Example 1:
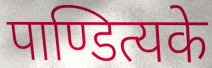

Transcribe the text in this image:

पाण्डित्यके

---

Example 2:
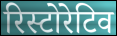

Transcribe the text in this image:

रिस्टोरेटिव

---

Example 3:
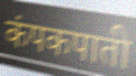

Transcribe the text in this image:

कंपकपाती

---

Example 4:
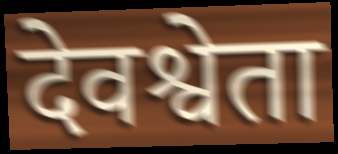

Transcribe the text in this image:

देवश्वेता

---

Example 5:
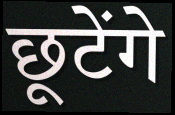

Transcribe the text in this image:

छूटेंगे